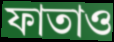
ফাতাও